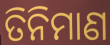
ତିନିମାଣ